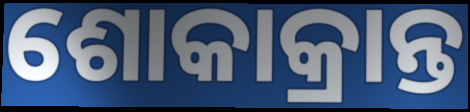
ଶୋକାକ୍ରାନ୍ତ